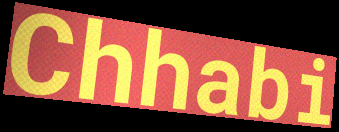
Chhabi